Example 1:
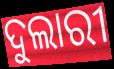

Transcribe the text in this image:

ଦୁଲାରୀ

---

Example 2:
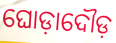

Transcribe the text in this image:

ଘୋଡ଼ାଦୌଡ଼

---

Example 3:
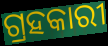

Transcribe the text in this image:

ଗ୍ରହକାରୀ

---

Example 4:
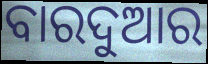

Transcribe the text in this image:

ବାରଦୁଆର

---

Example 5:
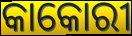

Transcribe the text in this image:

କାକୋରୀ